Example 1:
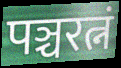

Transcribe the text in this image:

पञ्चरत्नं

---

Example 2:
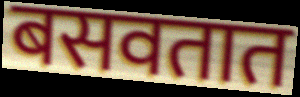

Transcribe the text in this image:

बसवतात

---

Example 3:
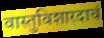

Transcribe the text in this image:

वास्तुविशारदाचं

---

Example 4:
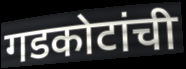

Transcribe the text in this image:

गडकोटांची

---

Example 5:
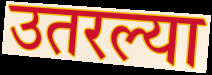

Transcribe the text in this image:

उतरल्या